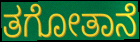
ತಗೋತಾನೆ